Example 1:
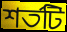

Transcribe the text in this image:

শর্তটি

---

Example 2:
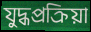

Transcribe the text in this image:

যুদ্ধপ্রক্রিয়া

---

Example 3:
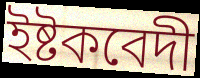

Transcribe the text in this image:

ইষ্টকবেদী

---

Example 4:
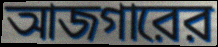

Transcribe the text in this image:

আজগারের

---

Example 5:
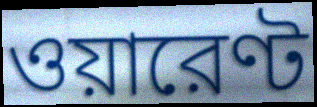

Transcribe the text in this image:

ওয়ারেণ্ট